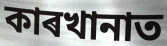
কাৰখানাত